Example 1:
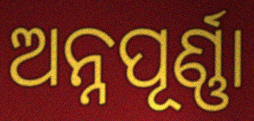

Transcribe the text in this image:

ଅନ୍ନପୂର୍ଣ୍ଣା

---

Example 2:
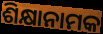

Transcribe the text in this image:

ଶିକ୍ଷାନାମକ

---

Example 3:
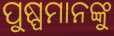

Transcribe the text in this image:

ପୁଷ୍ପମାନଙ୍କୁ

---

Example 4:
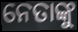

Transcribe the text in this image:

ନେତାଙ୍କୁ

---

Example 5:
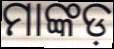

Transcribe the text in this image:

ମାଙ୍କଡ଼